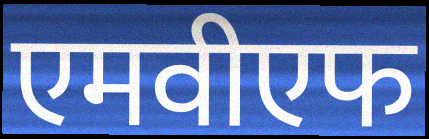
एमवीएफ